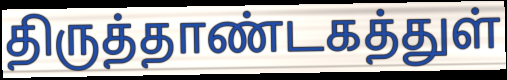
திருத்தாண்டகத்துள்